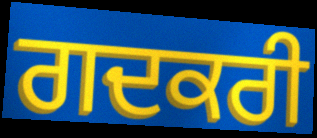
ਗਦਕਰੀ